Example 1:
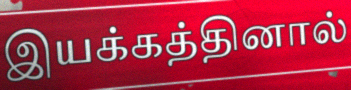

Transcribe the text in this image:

இயக்கத்தினால்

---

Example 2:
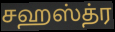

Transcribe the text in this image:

சஹஸ்த்ர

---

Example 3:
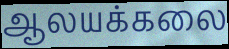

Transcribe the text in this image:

ஆலயக்கலை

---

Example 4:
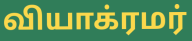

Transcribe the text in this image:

வியாக்ரமர்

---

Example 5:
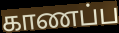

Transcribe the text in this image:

காணப்ப